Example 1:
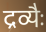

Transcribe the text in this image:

द्रव्यैः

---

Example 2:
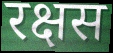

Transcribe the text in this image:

रक्षस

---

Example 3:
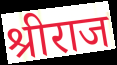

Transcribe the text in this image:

श्रीराज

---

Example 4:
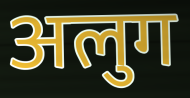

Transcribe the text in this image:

अलुग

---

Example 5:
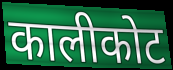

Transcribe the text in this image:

कालीकोट